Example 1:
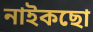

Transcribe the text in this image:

নাইকছো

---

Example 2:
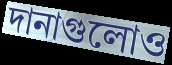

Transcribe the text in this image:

দানাগুলোও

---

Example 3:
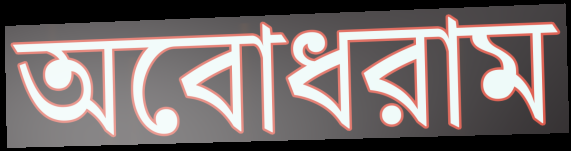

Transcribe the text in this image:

অবোধরাম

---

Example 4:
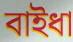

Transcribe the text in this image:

বাইধা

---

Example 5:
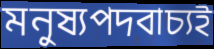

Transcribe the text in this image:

মনুষ্যপদবাচ্যই